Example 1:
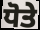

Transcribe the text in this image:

ਧੋਤੇ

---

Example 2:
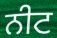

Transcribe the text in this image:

ਨੀਟ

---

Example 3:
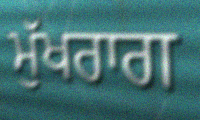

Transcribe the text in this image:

ਮੁੱਖਰਾਗ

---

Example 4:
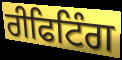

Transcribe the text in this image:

ਰੀਫਿਟਿੰਗ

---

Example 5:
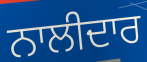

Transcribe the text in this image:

ਨਾਲੀਦਾਰ